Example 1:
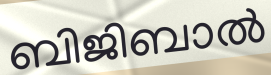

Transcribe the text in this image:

ബിജിബാൽ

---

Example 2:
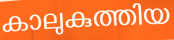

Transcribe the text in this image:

കാലുകുത്തിയ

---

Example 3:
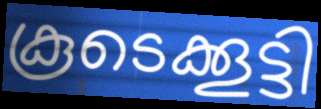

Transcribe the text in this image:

കൂടെക്കൂട്ടി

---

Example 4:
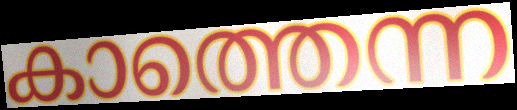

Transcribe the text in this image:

കാത്തെന്ന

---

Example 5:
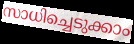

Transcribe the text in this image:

സാധിച്ചെടുക്കാം